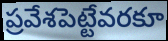
ప్రవేశపెట్టేవరకూ